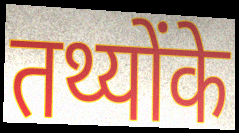
तथ्योंके